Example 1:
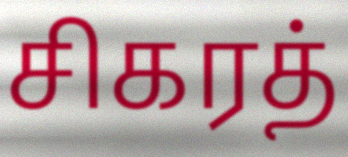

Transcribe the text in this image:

சிகரத்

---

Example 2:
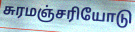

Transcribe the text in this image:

சுரமஞ்சரியோடு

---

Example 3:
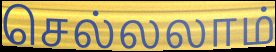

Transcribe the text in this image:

செல்லலாம்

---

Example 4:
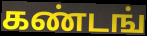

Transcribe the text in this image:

கண்டங்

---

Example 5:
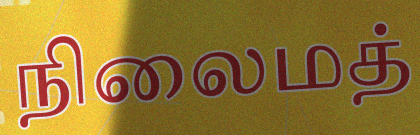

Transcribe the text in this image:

நிலைமத்